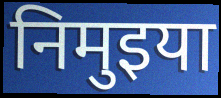
निमुइया